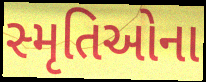
સ્મૃતિઓના